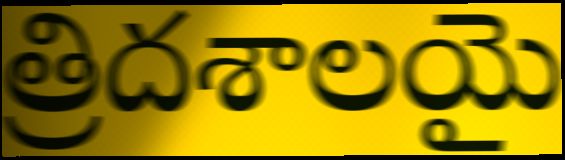
త్రిదశాలయై